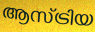
ആസ്ട്രിയ